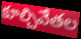
కూల్చివేతల